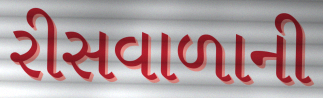
રીસવાળાની